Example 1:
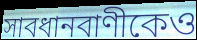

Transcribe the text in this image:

সাবধানবাণীকেও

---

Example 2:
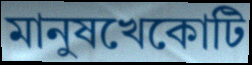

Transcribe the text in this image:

মানুষখেকোটি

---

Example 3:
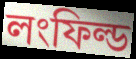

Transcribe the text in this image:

লংফিল্ড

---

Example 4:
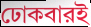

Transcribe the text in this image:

ঢোকবারই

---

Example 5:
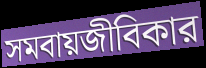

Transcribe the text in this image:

সমবায়জীবিকার